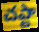
చఎ్టా